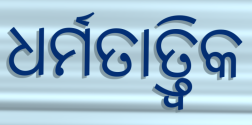
ଧର୍ମତାତ୍ତ୍ଵିକ